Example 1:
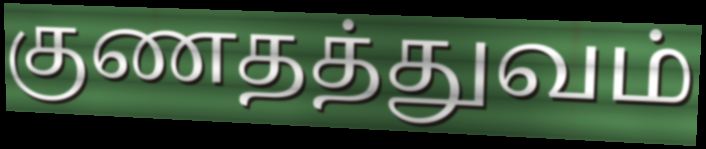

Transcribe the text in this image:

குணதத்துவம்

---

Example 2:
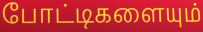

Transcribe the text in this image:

போட்டிகளையும்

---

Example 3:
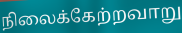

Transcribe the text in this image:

நிலைக்கேற்றவாறு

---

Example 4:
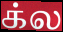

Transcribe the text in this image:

க்ல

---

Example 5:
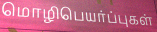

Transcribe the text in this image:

மொழிபெயர்ப்புகள்